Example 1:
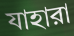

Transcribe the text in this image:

যাহারা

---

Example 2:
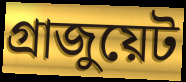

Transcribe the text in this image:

গ্রাজুয়েট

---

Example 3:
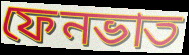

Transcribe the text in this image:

ফেনভাত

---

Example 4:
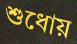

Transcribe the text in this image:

শুধোয়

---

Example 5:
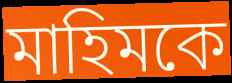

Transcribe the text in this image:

মাহিমকে